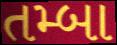
તમ્બા